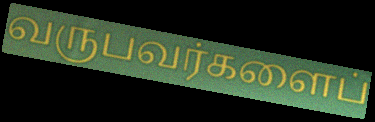
வருபவர்களைப்